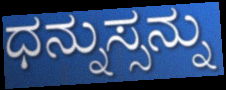
ಧನ್ನುಸ್ಸನ್ನು